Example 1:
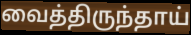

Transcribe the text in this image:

வைத்திருந்தாய்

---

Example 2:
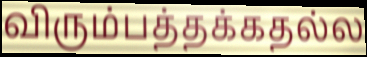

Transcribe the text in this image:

விரும்பத்தக்கதல்ல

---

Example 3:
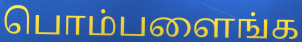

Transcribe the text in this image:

பொம்பளைங்க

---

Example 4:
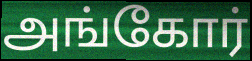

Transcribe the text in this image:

அங்கோர்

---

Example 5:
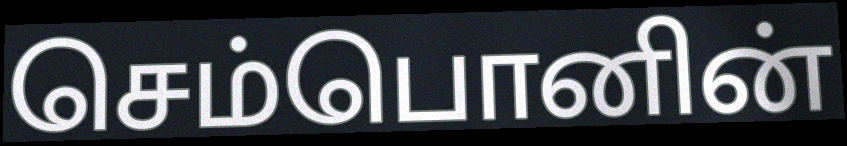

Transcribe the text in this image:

செம்பொனின்